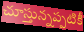
చూస్తున్నప్పటికీ